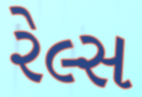
રેલ્સ